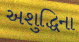
અશુદ્ધિના